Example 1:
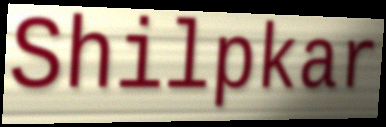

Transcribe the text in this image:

Shilpkar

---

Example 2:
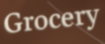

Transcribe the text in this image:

Grocery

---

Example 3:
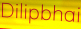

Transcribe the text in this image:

Dilipbhai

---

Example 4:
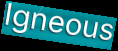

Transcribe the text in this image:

Igneous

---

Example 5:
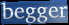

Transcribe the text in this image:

begger